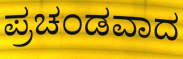
ಪ್ರಚಂಡವಾದ